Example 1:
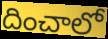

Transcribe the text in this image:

దించాలో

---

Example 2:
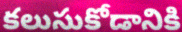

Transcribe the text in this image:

కలుసుకోడానికి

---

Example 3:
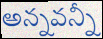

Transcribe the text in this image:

అన్నవన్నీ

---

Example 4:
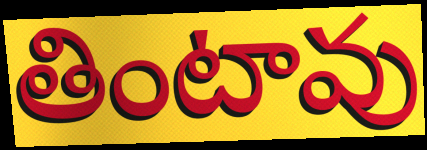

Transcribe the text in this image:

తింటావు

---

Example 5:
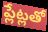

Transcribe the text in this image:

ప్లేట్లతో